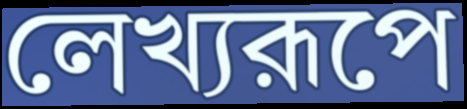
লেখ্যরূপে